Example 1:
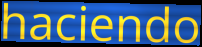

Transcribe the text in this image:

haciendo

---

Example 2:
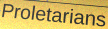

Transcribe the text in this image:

Proletarians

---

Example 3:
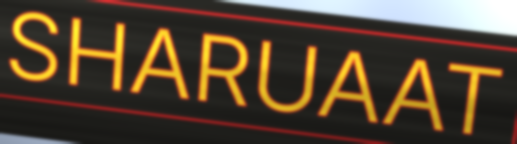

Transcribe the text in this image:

SHARUAAT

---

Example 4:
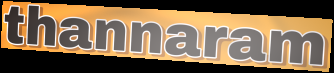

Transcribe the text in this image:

thannaram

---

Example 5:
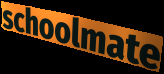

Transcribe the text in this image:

schoolmate